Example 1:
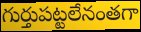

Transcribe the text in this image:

గుర్తుపట్టలేనంతగా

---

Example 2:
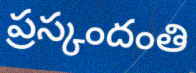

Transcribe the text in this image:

ప్రస్కందంతి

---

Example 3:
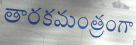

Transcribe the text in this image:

తారకమంత్రంగా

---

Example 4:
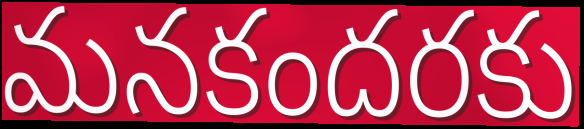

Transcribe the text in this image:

మనకందరకు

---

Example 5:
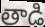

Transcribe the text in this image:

తాడి